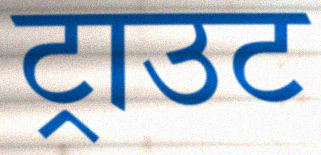
ट्राउट